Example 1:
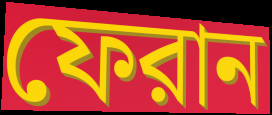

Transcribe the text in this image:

ফেরান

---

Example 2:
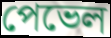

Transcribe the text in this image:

পেভেল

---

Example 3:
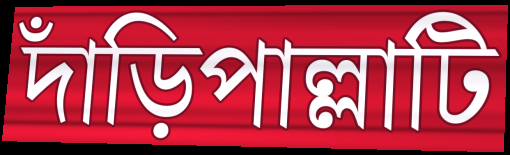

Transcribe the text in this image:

দাঁড়িপাল্লাটি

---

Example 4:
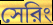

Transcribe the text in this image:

সেরিং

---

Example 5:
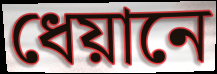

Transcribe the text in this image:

ধেয়ানে